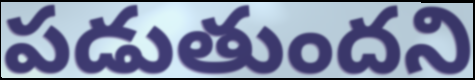
పడుతుందని